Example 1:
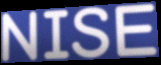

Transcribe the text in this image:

NISE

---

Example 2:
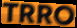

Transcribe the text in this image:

TRRO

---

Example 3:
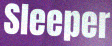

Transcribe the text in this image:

Sleeper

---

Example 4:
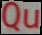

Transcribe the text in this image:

Qu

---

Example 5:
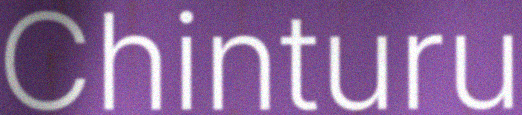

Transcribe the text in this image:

Chinturu